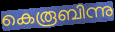
കെരൂബിന്നു